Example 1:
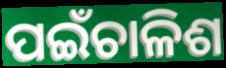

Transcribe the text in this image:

ପଇଁଚାଳିଶ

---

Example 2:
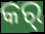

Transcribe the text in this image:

କର୍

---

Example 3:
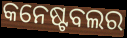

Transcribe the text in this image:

କନେଷ୍ଟବଲର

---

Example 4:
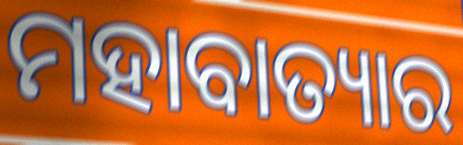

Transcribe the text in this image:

ମହାବାତ୍ୟାର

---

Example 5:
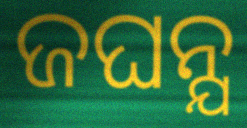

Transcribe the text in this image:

ଜଘନ୍ଯ